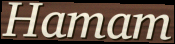
Hamam